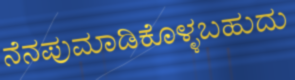
ನೆನಪುಮಾಡಿಕೊಳ್ಳಬಹುದು